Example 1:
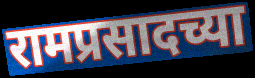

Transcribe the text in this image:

रामप्रसादच्या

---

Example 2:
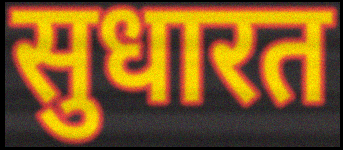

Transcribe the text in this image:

सुधारत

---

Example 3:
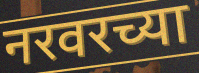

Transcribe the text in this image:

नरवरच्या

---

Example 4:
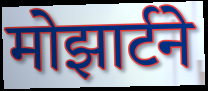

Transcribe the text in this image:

मोझार्टने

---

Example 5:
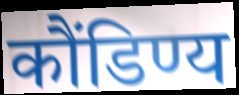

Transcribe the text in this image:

कौंडिण्य